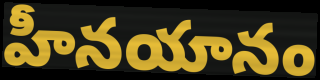
హీనయానం